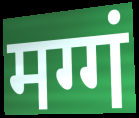
मग्गं